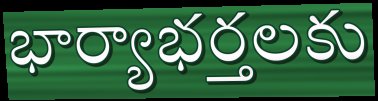
భార్యాభర్తలకు